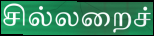
சில்லறைச்